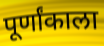
पूर्णांकाला